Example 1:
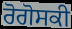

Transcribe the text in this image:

ਰੋਗੋਸਕੀ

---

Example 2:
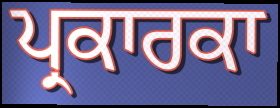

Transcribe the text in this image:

ਪ੍ਰਕਾਰਕਾ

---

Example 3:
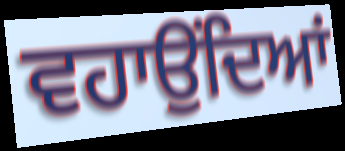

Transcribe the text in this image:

ਵਹਾਉਂਦਿਆਂ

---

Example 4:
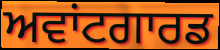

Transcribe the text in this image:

ਅਵਾਂਟਗਾਰਡ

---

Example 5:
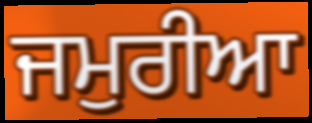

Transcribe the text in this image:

ਜਮੁਰੀਆ